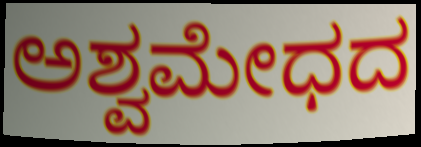
ಅಶ್ವಮೇಧದ